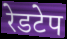
रेडटेप